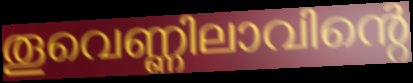
തൂവെണ്ണിലാവിന്റെ